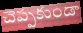
చెప్పకుండా